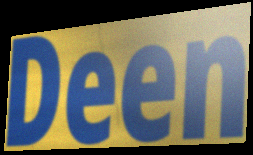
Deen